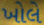
ખોલે